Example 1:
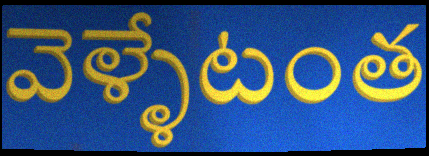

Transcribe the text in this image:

వెళ్ళేటంత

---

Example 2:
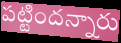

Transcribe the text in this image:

పట్టిందన్నారు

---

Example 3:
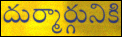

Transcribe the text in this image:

దుర్మార్గునికి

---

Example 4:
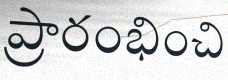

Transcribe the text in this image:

ప్రారంభించి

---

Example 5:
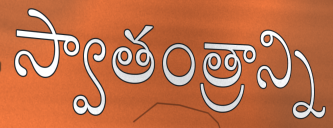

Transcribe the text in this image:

స్వాతంత్రాన్ని